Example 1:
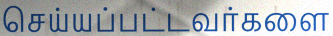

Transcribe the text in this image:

செய்யப்பட்டவர்களை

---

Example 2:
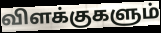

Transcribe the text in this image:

விளக்குகளும்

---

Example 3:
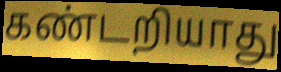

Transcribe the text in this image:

கண்டறியாது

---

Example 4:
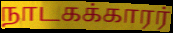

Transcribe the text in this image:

நாடகக்காரர்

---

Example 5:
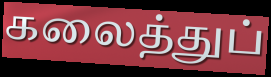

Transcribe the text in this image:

கலைத்துப்